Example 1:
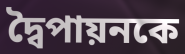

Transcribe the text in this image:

দ্বৈপায়নকে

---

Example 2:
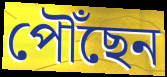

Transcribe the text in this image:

পৌঁছেন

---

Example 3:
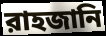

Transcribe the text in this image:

রাহজানি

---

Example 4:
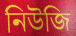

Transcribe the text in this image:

নিউজি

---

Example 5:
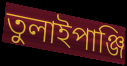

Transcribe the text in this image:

তুলাইপাঞ্জি